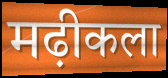
मढ़ीकला